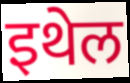
इथेल